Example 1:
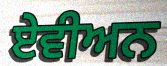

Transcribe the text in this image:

ਏਵੀਅਨ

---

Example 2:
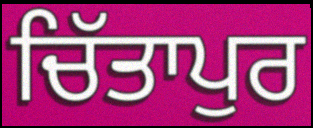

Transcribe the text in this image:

ਚਿੱਤਾਪੁਰ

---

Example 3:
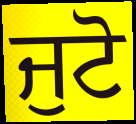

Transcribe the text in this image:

ਜੁਟੋ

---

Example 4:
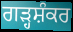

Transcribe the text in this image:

ਗੜ੍ਹਸ਼ੰਕਰ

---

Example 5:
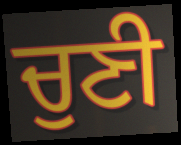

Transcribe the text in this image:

ਚੁਣੀ